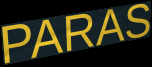
PARAS